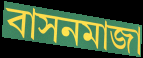
বাসনমাজা